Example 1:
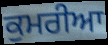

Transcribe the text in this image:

ਕੁਮਰੀਆ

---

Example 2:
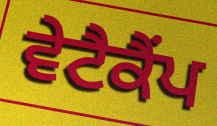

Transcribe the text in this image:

ਵੇਟੈਕੈਂਪ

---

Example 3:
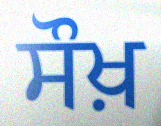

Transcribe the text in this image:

ਸੌਖ਼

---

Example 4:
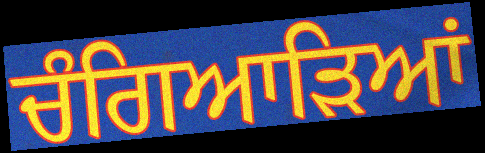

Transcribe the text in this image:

ਚੰਗਿਆੜਿਆਂ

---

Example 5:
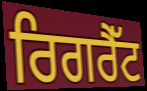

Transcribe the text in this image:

ਰਿਗਰੈੱਟ